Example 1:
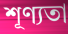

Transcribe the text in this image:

শূণ্যতা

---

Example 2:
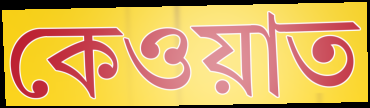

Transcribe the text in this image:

কেওয়াত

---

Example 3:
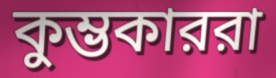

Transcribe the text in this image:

কুম্ভকাররা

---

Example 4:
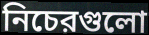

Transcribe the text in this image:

নিচেরগুলো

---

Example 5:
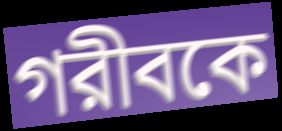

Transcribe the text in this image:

গরীবকে